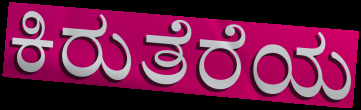
ಕಿರುತೆರೆಯ